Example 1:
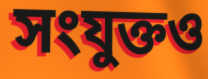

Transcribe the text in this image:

সংযুক্তও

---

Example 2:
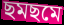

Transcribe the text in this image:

ছমছমে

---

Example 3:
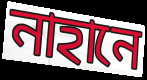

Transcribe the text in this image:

নাহানে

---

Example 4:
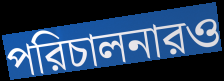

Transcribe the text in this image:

পরিচালনারও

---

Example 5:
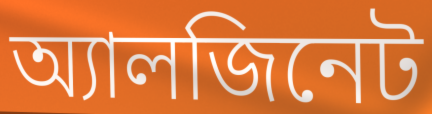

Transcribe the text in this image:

অ্যালজিনেট